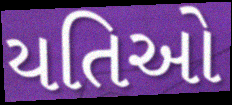
યતિઓ